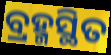
ବ୍ରହ୍ମସ୍ଥିତ